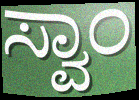
ಸ್ವಾಂ